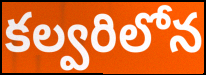
కల్వరిలోన